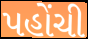
પહોંચી